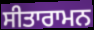
ਸੀਤਾਰਾਮਨ